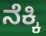
ನೆಕ್ಕಿ